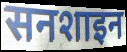
सनशाइन